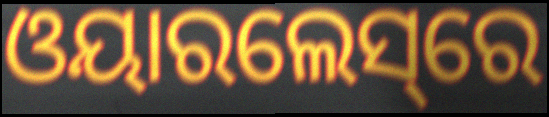
ଓୟାରଲେସ୍‌ରେ